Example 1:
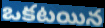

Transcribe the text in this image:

ఒకటయిన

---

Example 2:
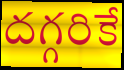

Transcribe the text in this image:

దగ్గరికే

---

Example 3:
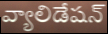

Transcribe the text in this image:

వ్యాలిడేషన్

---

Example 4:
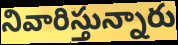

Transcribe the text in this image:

నివారిస్తున్నారు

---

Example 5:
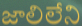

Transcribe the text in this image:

జాలిలేని